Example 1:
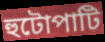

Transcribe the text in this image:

হুটোপাটি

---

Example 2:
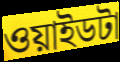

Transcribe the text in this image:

ওয়াইডটা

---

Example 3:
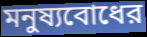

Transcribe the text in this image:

মনুষ্যবোধের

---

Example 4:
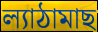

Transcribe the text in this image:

ল্যাঠামাছ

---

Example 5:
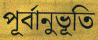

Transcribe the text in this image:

পূর্বানুভূতি